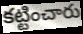
కట్టించారు